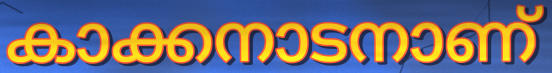
കാക്കനാടനാണ്